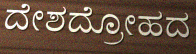
ದೇಶದ್ರೋಹದ